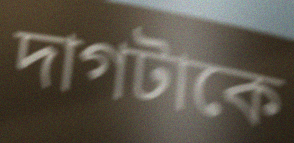
দাগটাকে